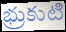
భ్రుకుటి